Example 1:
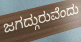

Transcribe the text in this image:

ಜಗದ್ಗುರುವೆಂದು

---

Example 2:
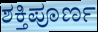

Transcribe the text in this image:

ಶಕ್ತಿಪೂರ್ಣ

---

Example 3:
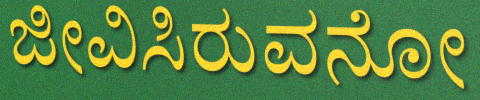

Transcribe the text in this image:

ಜೀವಿಸಿರುವನೋ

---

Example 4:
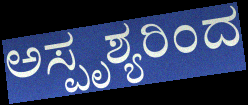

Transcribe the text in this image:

ಅಸ್ಪೃಶ್ಯರಿಂದ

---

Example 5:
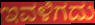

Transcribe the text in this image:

ಇವಳಿಗದು